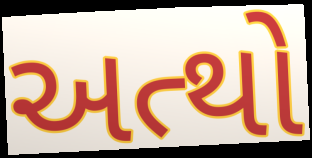
અત્થો